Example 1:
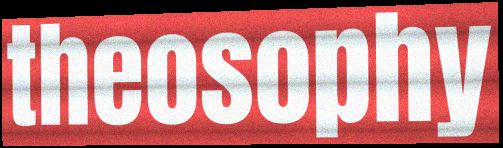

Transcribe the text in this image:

theosophy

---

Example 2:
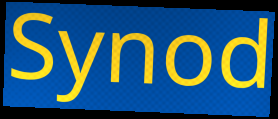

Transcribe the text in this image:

Synod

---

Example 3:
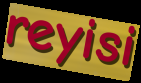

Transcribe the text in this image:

reyisi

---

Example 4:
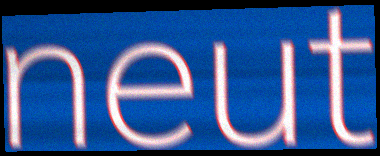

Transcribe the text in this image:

neut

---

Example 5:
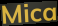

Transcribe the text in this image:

Mica